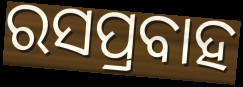
ରସପ୍ରବାହ